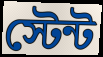
স্টেন্ট